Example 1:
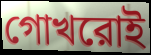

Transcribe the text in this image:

গোখরোই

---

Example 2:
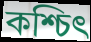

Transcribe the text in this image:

কশ্চিৎ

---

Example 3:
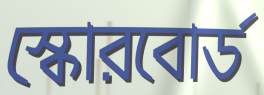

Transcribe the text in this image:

স্কোরবোর্ড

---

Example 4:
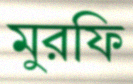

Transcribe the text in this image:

মুরফি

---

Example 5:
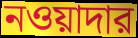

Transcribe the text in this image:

নওয়াদার